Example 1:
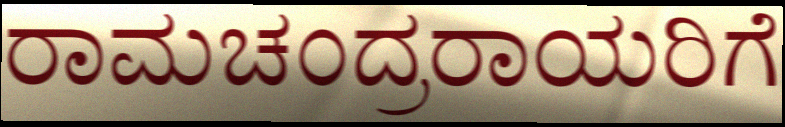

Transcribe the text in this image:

ರಾಮಚಂದ್ರರಾಯರಿಗೆ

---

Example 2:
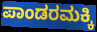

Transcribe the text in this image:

ಪಾಂಡರಮಕ್ಕಿ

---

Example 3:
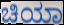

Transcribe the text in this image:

ಚಿಯಾ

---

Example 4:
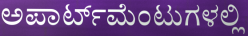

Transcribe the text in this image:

ಅಪಾರ್ಟ್‌ಮೆಂಟುಗಳಲ್ಲಿ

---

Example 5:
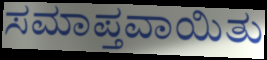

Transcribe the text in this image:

ಸಮಾಪ್ತವಾಯಿತು